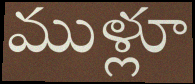
ముళ్లూ